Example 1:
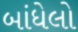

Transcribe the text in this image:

બાંધેલો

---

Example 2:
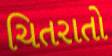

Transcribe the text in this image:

ચિતરાતો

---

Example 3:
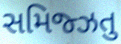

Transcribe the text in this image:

સમિજ્ઝતુ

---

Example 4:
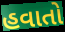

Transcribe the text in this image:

હવાતો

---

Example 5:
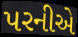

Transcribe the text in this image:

પરનીએ